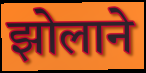
झोलाने